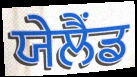
ਯੇਲੈਂਡ